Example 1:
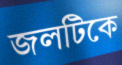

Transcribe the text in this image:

জলটিকে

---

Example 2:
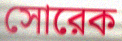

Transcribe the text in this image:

সোরেক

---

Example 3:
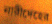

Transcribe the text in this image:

নারীদেহের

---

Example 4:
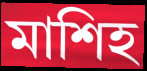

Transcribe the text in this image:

মাশিহ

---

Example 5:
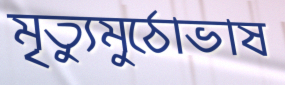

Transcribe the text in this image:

মৃত্যুমুঠোভাষ